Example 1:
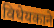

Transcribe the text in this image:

विधेयकाने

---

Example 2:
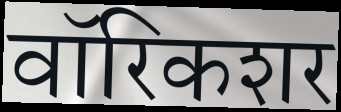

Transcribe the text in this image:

वॉरिकशर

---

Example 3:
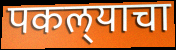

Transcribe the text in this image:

पकल्याचा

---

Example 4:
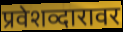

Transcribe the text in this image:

प्रवेशव्दारावर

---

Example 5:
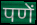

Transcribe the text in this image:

पणें